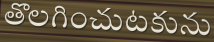
తొలగించుటకును